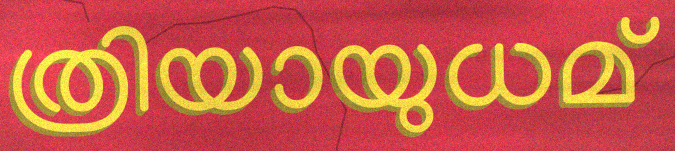
ത്രിയായുധമ്